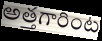
అత్తగారింట